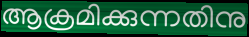
ആക്രമിക്കുന്നതിനു